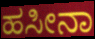
ಹಸೀನಾ